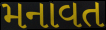
મનાવત